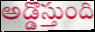
అడ్డొస్తుంది